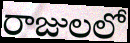
రాజులలో